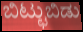
ಬಿಟ್ಟುಬಿಡು